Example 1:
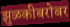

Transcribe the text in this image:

झुळकीबरोबर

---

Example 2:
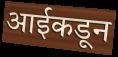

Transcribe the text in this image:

आईकडून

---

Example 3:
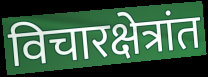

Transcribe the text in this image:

विचारक्षेत्रांत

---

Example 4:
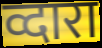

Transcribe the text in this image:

व्दारा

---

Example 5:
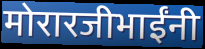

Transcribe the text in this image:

मोरारजीभाईंनी